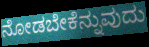
ನೋಡಬೇಕೆನ್ನುವುದು